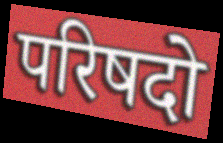
परिषदो